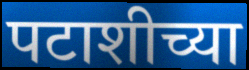
पटाशीच्या